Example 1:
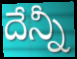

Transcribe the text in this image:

దేన్నీ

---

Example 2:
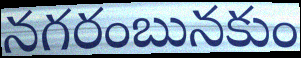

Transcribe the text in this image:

నగరంబునకుం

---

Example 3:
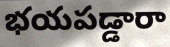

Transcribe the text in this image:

భయపడ్డారా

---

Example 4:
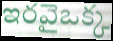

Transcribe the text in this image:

ఇరవైఒక్క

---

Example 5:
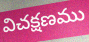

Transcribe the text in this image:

విచక్షణము